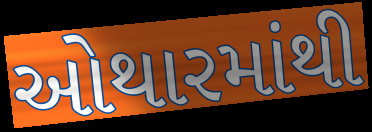
ઓથારમાંથી